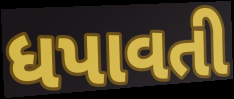
ધપાવતી